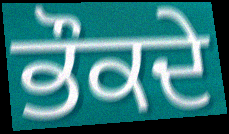
ਭੌਕਦੇ